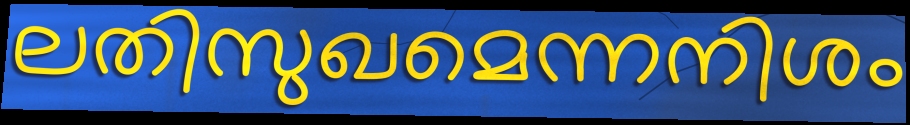
ലതിസുഖമെന്നനിശം